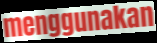
menggunakan